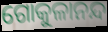
ଗୋକୁଳାନନ୍ଦ